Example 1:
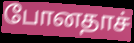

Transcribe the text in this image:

போனதாச்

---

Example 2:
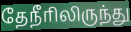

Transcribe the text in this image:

தேநீரிலிருந்து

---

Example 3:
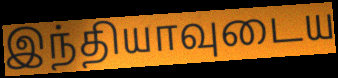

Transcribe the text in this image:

இந்தியாவுடைய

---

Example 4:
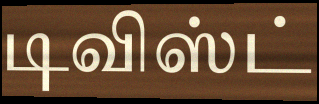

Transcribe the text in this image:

டிவிஸ்ட்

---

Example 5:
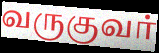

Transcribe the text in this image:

வருகுவர்